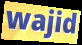
wajid